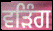
ਵੜਿੰਗ